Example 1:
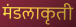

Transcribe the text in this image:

मंडलाकृती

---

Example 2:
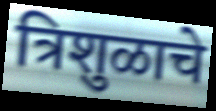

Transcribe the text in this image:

त्रिशुळाचे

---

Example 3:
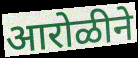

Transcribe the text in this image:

आरोळीने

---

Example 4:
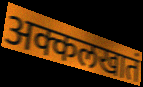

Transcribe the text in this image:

अक्कलखातं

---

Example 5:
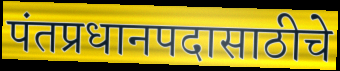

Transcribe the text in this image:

पंतप्रधानपदासाठीचे